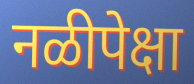
नळीपेक्षा